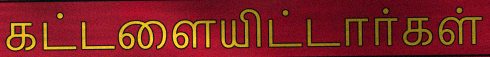
கட்டளையிட்டார்கள்